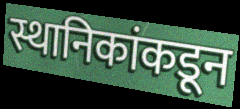
स्थानिकांकडून